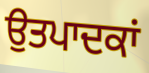
ਉਤਪਾਦਕਾਂ